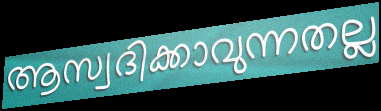
ആസ്വദിക്കാവുന്നതല്ല